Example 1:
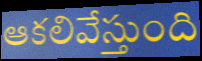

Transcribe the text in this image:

ఆకలివేస్తుంది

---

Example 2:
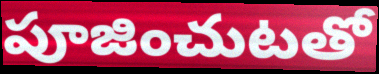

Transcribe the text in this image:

పూజించుటతో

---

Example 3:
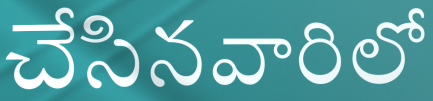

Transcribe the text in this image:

చేసినవారిలో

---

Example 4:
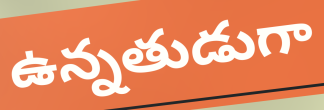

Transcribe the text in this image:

ఉన్నతుడుగా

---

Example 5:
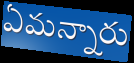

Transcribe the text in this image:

ఏమన్నారు